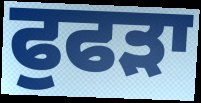
ਫੁਫੜਾ